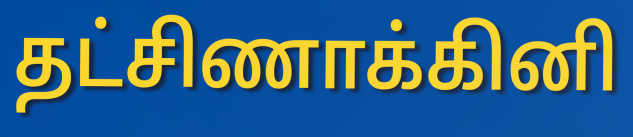
தட்சிணாக்கினி